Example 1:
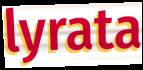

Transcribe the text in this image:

lyrata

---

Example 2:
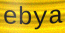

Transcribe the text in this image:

ebya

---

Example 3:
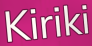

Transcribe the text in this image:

Kiriki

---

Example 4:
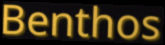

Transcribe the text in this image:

Benthos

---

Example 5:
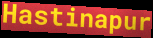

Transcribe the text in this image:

Hastinapur